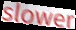
slower